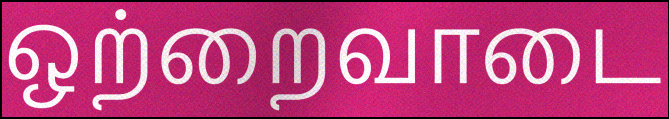
ஒற்றைவாடை